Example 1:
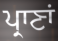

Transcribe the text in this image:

ਪ੍ਰਾਣਾਂ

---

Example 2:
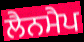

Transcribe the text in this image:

ਲੈਨਮੈਪ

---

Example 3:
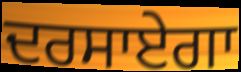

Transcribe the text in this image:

ਦਰਸਾਏਗਾ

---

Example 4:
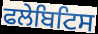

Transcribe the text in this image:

ਫਲੇਬਿਟਿਸ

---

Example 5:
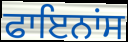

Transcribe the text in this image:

ਫਾਇਨਾਂਸ